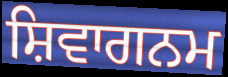
ਸ਼ਿਵਾਗਨਮ